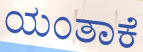
ಯಂತಾಕೆ